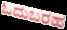
ಓದುಬರಹ